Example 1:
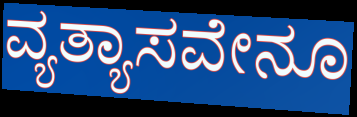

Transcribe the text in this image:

ವ್ಯತ್ಯಾಸವೇನೂ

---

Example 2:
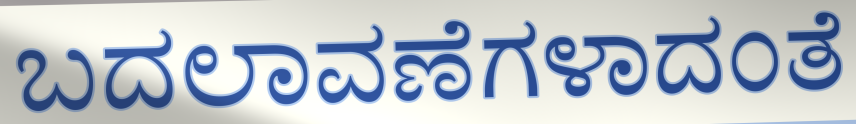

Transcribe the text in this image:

ಬದಲಾವಣೆಗಳಾದಂತೆ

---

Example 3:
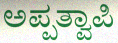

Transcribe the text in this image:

ಅಪ್ಪತ್ವಾಪಿ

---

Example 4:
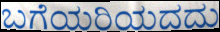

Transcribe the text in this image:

ಬಗೆಯರಿಯದದು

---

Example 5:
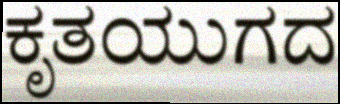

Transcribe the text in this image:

ಕೃತಯುಗದ